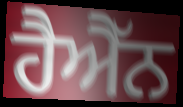
ਹੈਐੱਨ